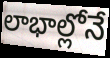
లాభాల్లోనే